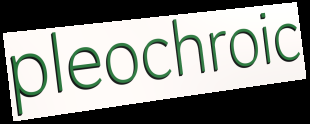
pleochroic